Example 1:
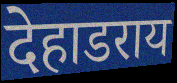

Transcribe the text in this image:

देहाडराय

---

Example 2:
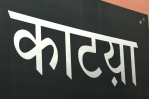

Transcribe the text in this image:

काटय़ा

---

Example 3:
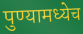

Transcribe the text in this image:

पुण्यामध्येच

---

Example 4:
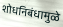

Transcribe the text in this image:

शोधनिबंधामुळे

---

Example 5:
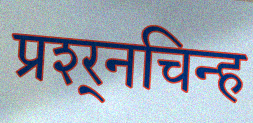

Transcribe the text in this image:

प्रश्र्नचिन्ह